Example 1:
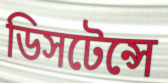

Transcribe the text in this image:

ডিসটেন্সে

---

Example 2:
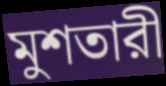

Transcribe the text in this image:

মুশতারী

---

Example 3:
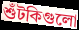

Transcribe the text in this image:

শুঁটকিগুলো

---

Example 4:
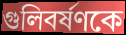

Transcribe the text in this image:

গুলিবর্ষণকে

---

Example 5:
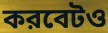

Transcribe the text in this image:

করবেটও